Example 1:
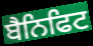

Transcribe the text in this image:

ਬੈਨਿਫਿਟ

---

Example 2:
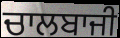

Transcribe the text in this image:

ਚਾਲਬਾਜੀ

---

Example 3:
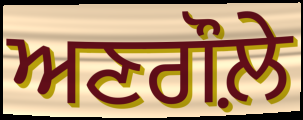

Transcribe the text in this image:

ਅਣਗੌਲ਼ੇ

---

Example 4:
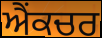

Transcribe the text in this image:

ਐਂਕਚਰ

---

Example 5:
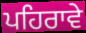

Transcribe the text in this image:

ਪਹਿਰਾਵੇ